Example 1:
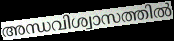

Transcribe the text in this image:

അന്ധവിശ്വാസത്തിൽ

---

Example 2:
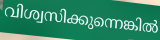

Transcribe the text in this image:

വിശ്വസിക്കുന്നെങ്കിൽ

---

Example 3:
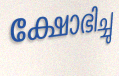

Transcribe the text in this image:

ക്ഷോഭിച്ചു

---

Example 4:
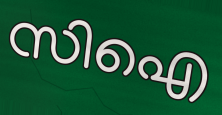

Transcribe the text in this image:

സിഐ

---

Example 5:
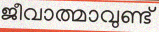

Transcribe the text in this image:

ജീവാത്മാവുണ്ട്